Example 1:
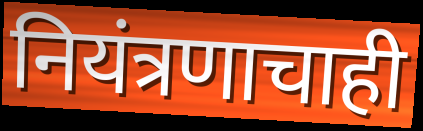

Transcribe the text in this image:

नियंत्रणाचाही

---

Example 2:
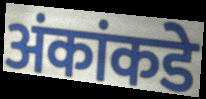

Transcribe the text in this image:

अंकांकडे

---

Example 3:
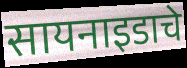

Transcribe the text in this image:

सायनाइडाचे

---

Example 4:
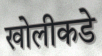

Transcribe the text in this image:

खोलीकडे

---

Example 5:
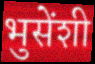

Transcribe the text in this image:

भुसेंशी